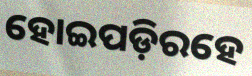
ହୋଇପଡ଼ିରହେ